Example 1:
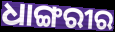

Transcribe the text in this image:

ଧାଙ୍ଗରୀର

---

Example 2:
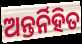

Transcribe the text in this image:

ଅନ୍ତର୍ନିହିତ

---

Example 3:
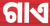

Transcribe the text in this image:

ଗାଏ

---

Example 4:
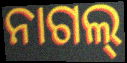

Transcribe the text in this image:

ନାଗଲ୍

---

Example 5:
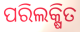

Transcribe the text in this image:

ପରିଲକ୍ଷିତ